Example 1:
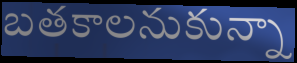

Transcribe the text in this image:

బతకాలనుకున్నా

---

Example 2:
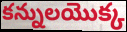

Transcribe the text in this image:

కన్నులయొక్క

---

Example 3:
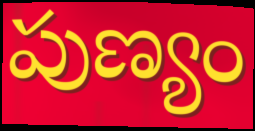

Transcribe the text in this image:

పుణ్యం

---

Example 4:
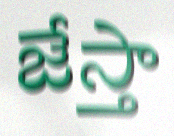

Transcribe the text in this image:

జేస్తా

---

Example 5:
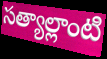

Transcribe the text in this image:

సత్యాల్లాంటి